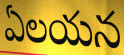
ఏలయన